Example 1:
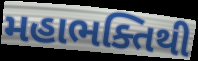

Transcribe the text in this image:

મહાભક્તિથી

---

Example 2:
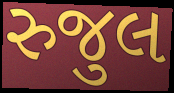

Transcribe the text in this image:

રુજુલ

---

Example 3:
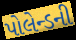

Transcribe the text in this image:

પોલેન્ડની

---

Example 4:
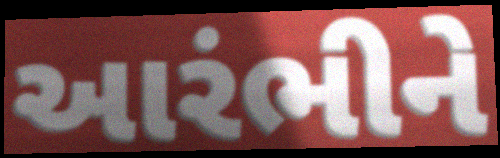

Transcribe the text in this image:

આરંભીને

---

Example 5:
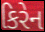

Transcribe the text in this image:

કિરેન